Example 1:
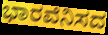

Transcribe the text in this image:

ಭಾರವೆನಿಸದ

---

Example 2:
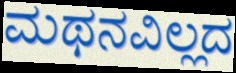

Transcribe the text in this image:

ಮಥನವಿಲ್ಲದ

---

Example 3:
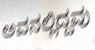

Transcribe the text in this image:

ಅವನಲ್ಲಿದ್ದವು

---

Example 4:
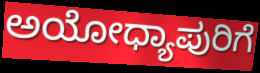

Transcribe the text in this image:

ಅಯೋಧ್ಯಾಪುರಿಗೆ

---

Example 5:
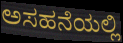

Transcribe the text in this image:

ಅಸಹನೆಯಲ್ಲಿ